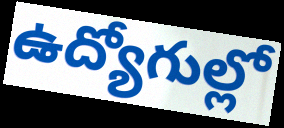
ఉద్యోగుల్లో